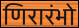
णिरारंभो